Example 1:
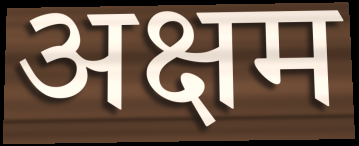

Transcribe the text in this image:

अक्षम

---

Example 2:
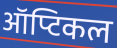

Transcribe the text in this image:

ऑप्टिकल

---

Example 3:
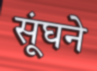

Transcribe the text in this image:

सूंघने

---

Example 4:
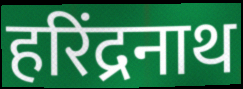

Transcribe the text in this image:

हरिंद्रनाथ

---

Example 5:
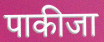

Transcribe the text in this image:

पाकीजा